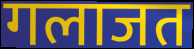
गलाजत